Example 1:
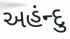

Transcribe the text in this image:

અહંન્દુ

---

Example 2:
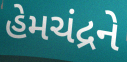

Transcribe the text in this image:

હેમચંદ્રને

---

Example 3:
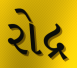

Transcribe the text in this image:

રોદ્ર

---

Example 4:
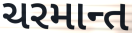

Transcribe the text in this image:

ચરમાન્ત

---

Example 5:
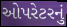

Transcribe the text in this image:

ઓપરેટરનું